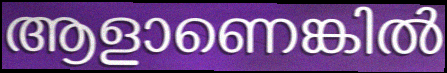
ആളാണെങ്കിൽ